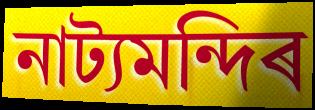
নাট্যমন্দিৰ